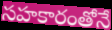
సహకారంతోనే